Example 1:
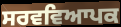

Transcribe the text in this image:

ਸਰਵਵਿਆਪਕ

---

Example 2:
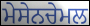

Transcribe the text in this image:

ਮੇਸੇਨਚੇਮਲ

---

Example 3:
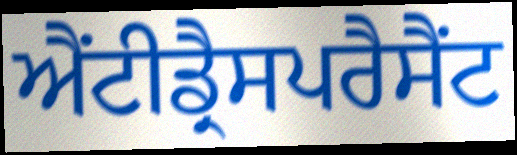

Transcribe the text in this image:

ਐਂਟੀਡ੍ਰੈਸਪਰੈਸੈਂਟ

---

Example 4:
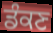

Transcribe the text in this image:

ਡੰਕਣ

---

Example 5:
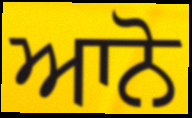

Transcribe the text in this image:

ਆਨੋ